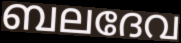
ബലദേവ